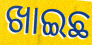
ଖାଇଛ